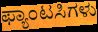
ಫ್ಯಾಂಟಸಿಗಳು